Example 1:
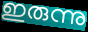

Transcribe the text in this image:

ഇരുന്നു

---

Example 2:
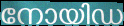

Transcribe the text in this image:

നോയിഡ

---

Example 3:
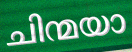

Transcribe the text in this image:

ചിന്മയാ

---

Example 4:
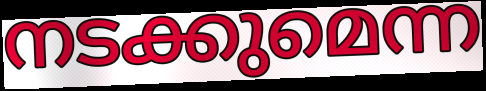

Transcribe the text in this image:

നടക്കുമെന്ന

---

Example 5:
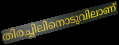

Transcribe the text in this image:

തിരച്ചിലിനൊടുവിലാണ്